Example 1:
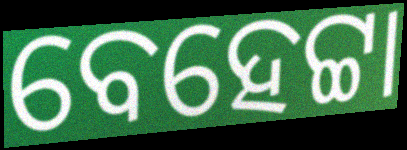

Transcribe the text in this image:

ବେହେଟ୍ଟା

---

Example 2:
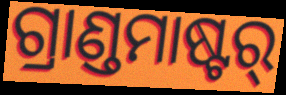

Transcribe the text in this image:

ଗ୍ରାଣ୍ଡମାଷ୍ଟର୍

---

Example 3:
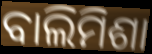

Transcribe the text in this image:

ବାଲିମିଶା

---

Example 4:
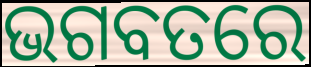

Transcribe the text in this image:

ଭଗବତରେ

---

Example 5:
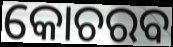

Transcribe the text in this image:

କୋଚରବ